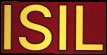
ISIL